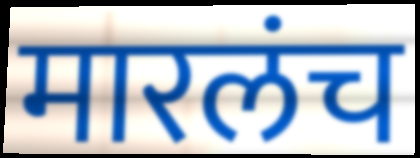
मारलंच